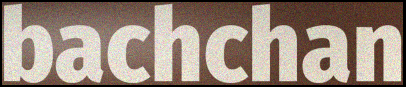
bachchan